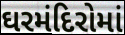
ઘરમંદિરોમાં